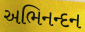
અભિનન્દન